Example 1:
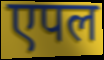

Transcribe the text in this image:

एपल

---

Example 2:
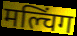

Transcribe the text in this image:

मल्चिंग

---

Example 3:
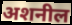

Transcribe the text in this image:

अशनील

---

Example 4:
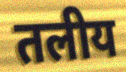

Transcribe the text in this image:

तलीय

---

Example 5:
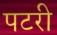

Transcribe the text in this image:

पटरी